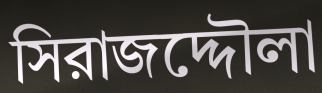
সিরাজদ্দৌলা